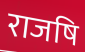
राजषि